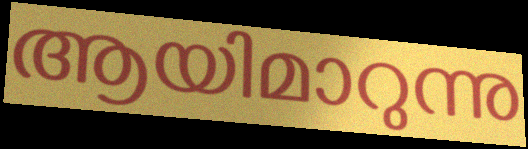
ആയിമാറുന്നു